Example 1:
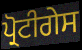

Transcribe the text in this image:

ਪ੍ਰੋਟੀਗੇਸ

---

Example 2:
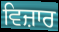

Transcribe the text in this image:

ਵਿਜ਼ਾਰ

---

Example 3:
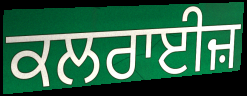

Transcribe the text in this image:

ਕਲਰਾਈਜ਼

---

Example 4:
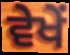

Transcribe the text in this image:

ਵੇਖੇਂ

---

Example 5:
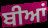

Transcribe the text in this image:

ਬੀਆਂ